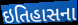
ઇતિહાસના